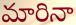
మారినా